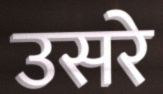
उसरे